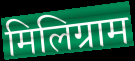
मिलिग्राम